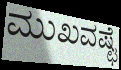
ಮುಖವಷ್ಟೆ